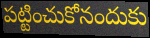
పట్టించుకోనందుకు